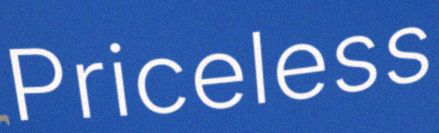
Priceless